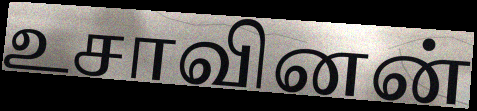
உசாவினன்